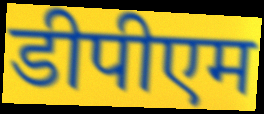
डीपीएम